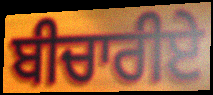
ਬੀਚਾਰੀਏ